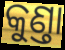
କୁଣ୍ତା